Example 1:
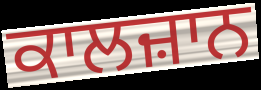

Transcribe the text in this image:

ਕਾਲਜ਼ਾਨ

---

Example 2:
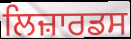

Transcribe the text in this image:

ਲਿਜ਼ਾਰਡਸ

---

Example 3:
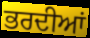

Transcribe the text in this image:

ਭਰਦੀਆਂ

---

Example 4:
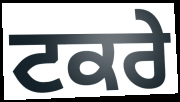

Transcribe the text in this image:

ਟਕਰੇ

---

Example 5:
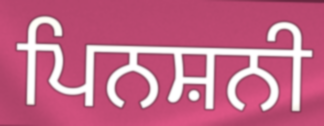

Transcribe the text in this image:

ਪਿਨਸ਼ਨੀ